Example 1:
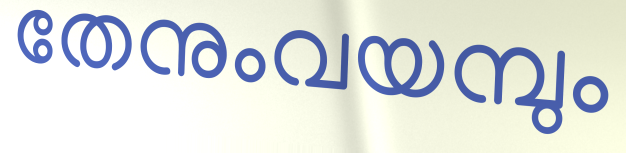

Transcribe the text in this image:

തേനുംവയമ്പും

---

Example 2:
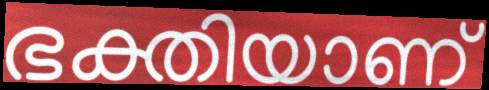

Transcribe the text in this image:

ഭക്തിയാണ്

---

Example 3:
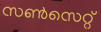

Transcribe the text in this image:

സൺസെറ്റ്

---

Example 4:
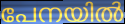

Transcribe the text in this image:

പേനയിൽ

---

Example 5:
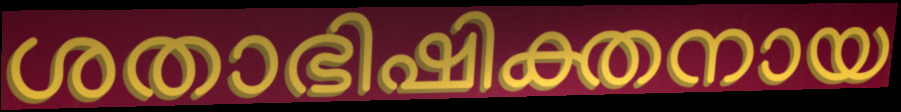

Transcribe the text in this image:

ശതാഭിഷിക്തനായ